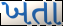
ખતા